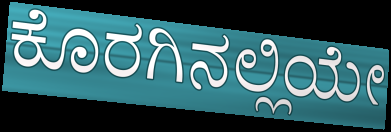
ಕೊರಗಿನಲ್ಲಿಯೇ